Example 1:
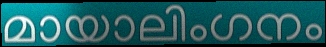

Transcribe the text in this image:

മായാലിംഗനം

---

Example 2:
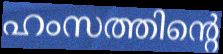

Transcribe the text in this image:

ഹംസത്തിന്റെ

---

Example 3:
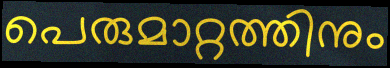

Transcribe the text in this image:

പെരുമാറ്റത്തിനും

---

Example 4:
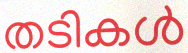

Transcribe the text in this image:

തടികൾ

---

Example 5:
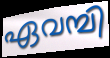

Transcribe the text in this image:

ഏവമ്പി